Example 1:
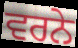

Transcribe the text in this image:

ਵਰਨੇ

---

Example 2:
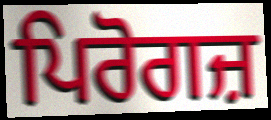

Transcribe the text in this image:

ਪਿਰੋਗਜ਼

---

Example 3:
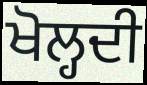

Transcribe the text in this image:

ਖੋਲ੍ਹਦੀ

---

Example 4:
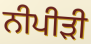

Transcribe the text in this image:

ਨੀਪੀੜੀ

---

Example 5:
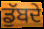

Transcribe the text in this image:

ਡੁੱਬਦੇ